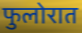
फुलोरात